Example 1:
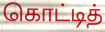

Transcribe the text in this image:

கொட்டித்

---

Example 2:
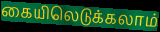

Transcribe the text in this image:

கையிலெடுக்கலாம்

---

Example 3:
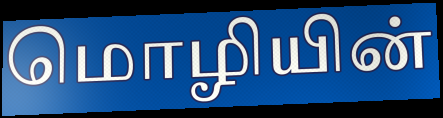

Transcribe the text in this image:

மொழியின்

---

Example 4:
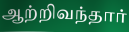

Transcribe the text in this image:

ஆற்றிவந்தார்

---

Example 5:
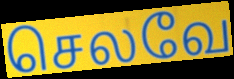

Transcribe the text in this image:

செலவே